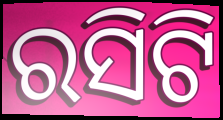
ରସିଟି